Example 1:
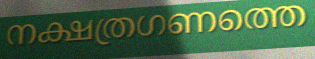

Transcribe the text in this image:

നക്ഷത്രഗണത്തെ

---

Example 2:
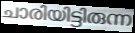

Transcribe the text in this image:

ചാരിയിട്ടിരുന്ന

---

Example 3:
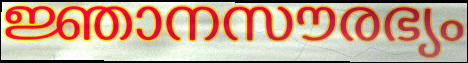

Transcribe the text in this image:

ജ്ഞാനസൗരഭ്യം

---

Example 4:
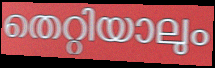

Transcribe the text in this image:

തെറ്റിയാലും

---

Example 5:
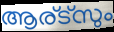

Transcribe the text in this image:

ആര്ട്സും